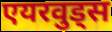
एयरवुड्स